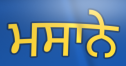
ਮਸਾਨੇ